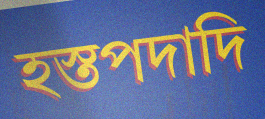
হস্তপদাদি